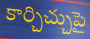
కార్చిచ్చుపై